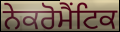
ਨੇਕਰੋਮੈਂਟਿਕ